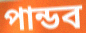
পান্ডব